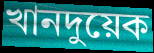
খানদুয়েক